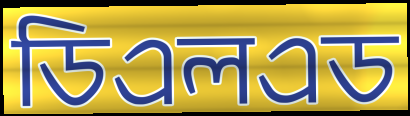
ডিএলএড